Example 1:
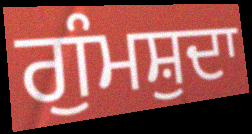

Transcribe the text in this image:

ਗੁੰਮਸ਼ੁਦਾ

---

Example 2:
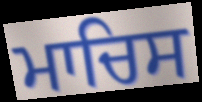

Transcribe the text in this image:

ਮਾਚਿਸ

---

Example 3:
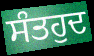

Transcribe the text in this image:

ਸੰਤਹੁਦ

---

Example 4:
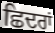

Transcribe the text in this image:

ਛਿਦਰਾਂ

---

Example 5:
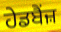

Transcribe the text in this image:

ਹੇਡਬੈਂਜ਼